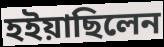
হইয়াছিলেন